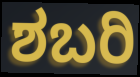
ಶಬರಿ